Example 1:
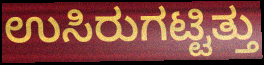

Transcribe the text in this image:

ಉಸಿರುಗಟ್ಟಿತ್ತು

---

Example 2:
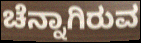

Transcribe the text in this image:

ಚೆನ್ನಾಗಿರುವ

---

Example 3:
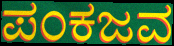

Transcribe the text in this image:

ಪಂಕಜವ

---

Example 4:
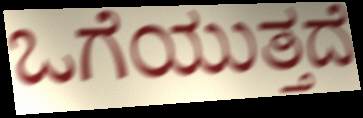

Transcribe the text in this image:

ಒಗೆಯುತ್ತದೆ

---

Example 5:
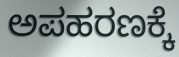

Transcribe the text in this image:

ಅಪಹರಣಕ್ಕೆ